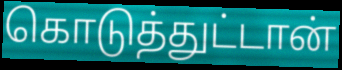
கொடுத்துட்டான்